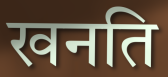
खनति